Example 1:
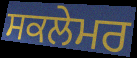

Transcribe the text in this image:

ਸਕਲੇਮਰ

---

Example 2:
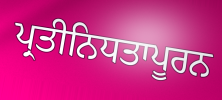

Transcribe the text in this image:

ਪ੍ਰਤੀਨਿਧਤਾਪੂਰਨ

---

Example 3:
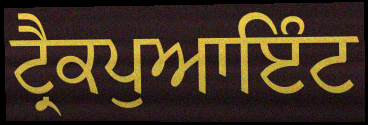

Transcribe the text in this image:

ਟ੍ਰੈਕਪੁਆਇੰਟ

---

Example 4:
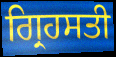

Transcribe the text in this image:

ਗ੍ਰਿਹਸਤੀ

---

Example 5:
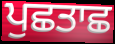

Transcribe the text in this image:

ਪੁਛਤਾਛ